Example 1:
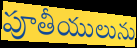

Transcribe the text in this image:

పూతీయులును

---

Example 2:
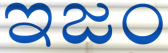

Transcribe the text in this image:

ఇజం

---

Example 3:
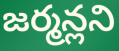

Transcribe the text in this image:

జర్మన్లని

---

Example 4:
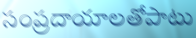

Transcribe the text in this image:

సంప్రదాయాలతోపాటు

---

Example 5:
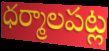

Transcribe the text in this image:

ధర్మాలపట్ల